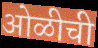
ओळीची